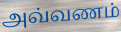
அவ்வணம்